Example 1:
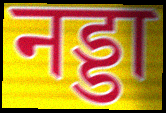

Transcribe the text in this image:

नड्डा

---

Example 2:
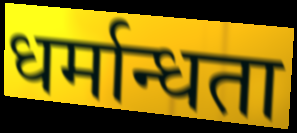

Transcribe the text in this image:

धर्मान्धता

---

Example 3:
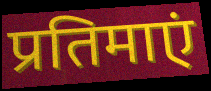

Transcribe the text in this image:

प्रतिमाएं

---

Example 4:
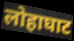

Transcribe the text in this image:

लोहाघाट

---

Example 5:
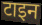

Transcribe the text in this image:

टाइन